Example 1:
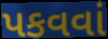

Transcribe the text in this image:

પકવવાં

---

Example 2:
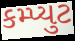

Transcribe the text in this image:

કમ્પ્યુટ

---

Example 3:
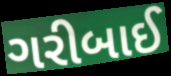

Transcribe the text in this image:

ગરીબાઈ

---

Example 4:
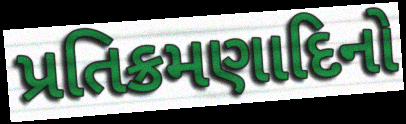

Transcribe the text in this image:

પ્રતિક્રમણાદિનો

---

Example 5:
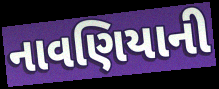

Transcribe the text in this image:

નાવણિયાની